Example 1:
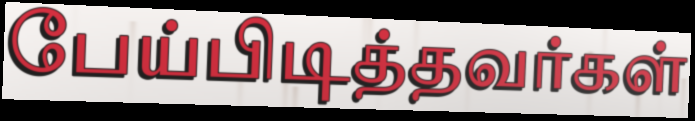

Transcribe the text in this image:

பேய்பிடித்தவர்கள்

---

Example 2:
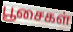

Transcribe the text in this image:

பூசைகள்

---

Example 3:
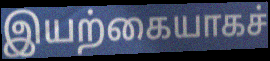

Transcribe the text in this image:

இயற்கையாகச்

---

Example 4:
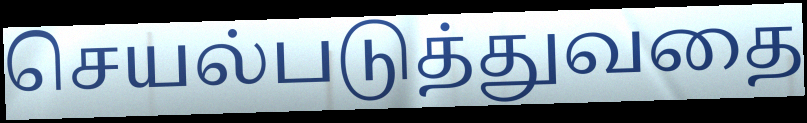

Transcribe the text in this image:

செயல்படுத்துவதை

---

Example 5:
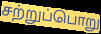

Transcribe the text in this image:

சற்றுப்பொறு